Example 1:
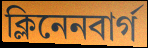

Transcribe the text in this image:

ক্লিনেনবার্গ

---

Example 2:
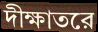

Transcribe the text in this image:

দীক্ষাতরে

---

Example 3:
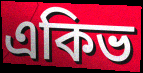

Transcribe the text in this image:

একিভ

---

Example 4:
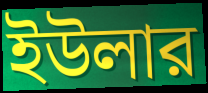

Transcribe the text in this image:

ইউলার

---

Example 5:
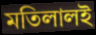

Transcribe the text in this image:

মতিলালই